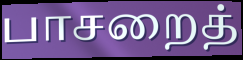
பாசறைத்